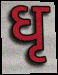
धृ